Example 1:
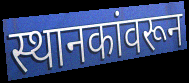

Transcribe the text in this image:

स्थानकांवरून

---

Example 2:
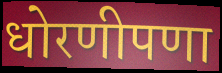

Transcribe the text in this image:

धोरणीपणा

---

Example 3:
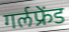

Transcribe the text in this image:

गर्लफ्रेंड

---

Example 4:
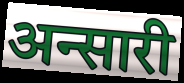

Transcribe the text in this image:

अन्सारी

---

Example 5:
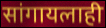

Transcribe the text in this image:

सांगायलाही